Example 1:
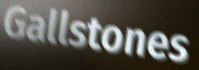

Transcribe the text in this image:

Gallstones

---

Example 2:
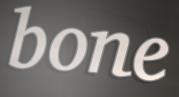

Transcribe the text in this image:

bone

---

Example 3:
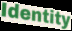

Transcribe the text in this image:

Identity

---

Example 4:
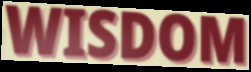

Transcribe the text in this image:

WISDOM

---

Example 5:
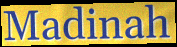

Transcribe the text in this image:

Madinah